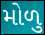
મોળુ